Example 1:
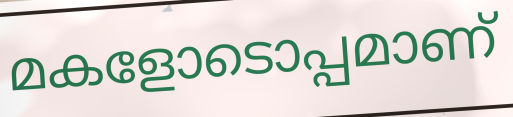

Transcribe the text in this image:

മകളോടൊപ്പമാണ്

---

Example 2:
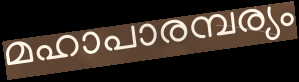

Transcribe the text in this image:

മഹാപാരമ്പര്യം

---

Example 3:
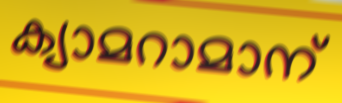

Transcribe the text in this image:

ക്യാമറാമാന്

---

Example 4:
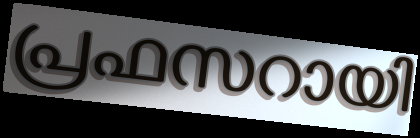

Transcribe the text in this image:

പ്രഫസറായി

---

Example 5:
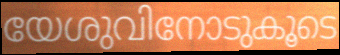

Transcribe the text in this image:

യേശുവിനോടുകൂടെ